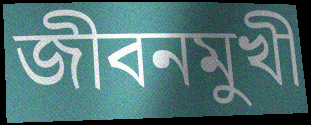
জীবনমুখী